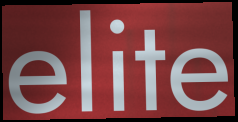
elite